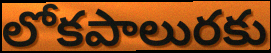
లోకపాలురకు